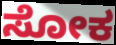
ಸೋಕ